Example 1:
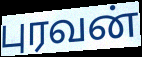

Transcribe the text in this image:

புரவன்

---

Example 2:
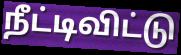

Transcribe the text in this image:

நீட்டிவிட்டு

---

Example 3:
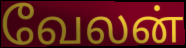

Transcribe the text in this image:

வேலன்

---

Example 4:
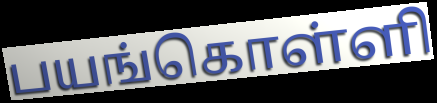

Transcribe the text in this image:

பயங்கொள்ளி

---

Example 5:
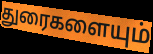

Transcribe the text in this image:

துரைகளையும்